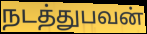
நடத்துபவன்